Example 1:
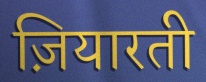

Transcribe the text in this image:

ज़ियारती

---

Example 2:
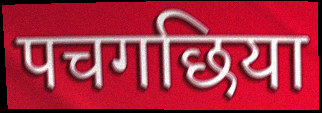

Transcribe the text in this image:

पचगछिया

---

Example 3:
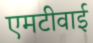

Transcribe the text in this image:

एमटीवाई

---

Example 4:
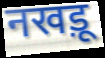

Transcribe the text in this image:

नखड़ू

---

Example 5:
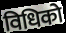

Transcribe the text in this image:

विधिको